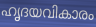
ഹൃദയവികാരം